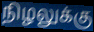
நிழலுக்கு